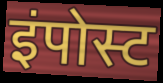
इंपोस्ट